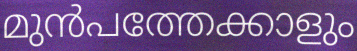
മുൻപത്തേക്കാളും